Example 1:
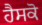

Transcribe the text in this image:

ਹੈਸਕੋ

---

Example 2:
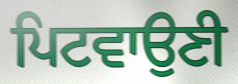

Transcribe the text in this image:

ਪਿਟਵਾਉਣੀ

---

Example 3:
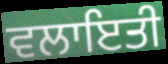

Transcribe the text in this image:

ਵਲਾਇਤੀ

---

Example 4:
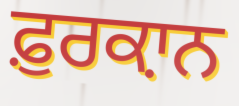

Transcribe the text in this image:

ਫ਼ੁਰਕ਼ਾਨ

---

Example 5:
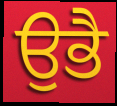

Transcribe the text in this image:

ਉਭੈ